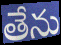
తేను